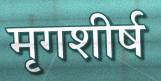
मृगशीर्ष